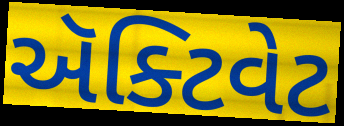
ઍક્ટિવેટ